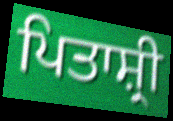
ਪਿਤਾਸ਼੍ਰੀ